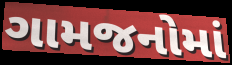
ગામજનોમાં